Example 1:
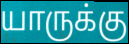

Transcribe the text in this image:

யாருக்கு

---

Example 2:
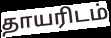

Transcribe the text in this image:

தாயரிடம்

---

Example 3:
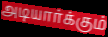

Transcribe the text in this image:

அடியார்க்கும்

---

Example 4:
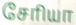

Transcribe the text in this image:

சேரியா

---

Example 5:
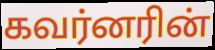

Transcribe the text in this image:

கவர்னரின்